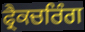
ਫ੍ਰੈਕਚਰਿੰਗ